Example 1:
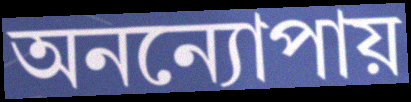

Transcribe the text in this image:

অনন্যোপায়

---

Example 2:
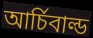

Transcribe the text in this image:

আর্চিবাল্ড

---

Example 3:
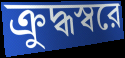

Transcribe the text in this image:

ক্রুদ্ধস্বরে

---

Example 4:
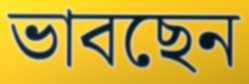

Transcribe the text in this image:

ভাবছেন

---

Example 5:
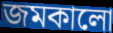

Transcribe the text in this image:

জমকালো